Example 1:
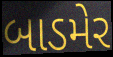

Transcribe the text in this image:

બાડમેર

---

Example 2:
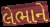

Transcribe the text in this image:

લેભાને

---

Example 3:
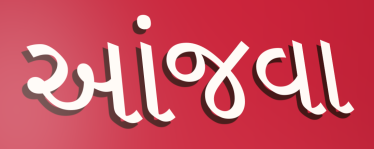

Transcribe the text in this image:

આંજવા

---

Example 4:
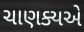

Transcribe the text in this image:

ચાણક્યએ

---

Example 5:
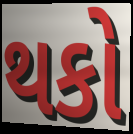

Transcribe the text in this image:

થકો